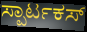
ಸ್ಪಾರ್ಟಕಸ್